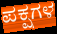
ಪಕ್ಷಗಳ